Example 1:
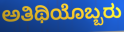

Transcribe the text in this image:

ಅತಿಥಿಯೊಬ್ಬರು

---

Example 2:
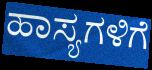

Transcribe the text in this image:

ಹಾಸ್ಯಗಳಿಗೆ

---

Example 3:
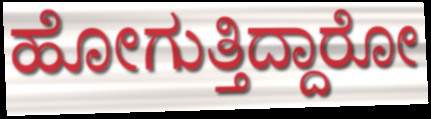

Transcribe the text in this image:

ಹೋಗುತ್ತಿದ್ದಾರೋ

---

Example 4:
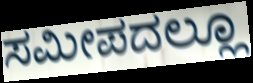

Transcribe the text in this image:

ಸಮೀಪದಲ್ಲೂ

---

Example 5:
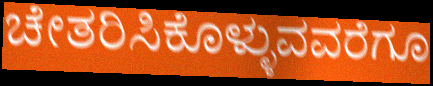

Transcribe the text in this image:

ಚೇತರಿಸಿಕೊಳ್ಳುವವರೆಗೂ